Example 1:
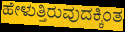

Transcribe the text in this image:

ಹೇಳುತ್ತಿರುವುದಕ್ಕಿಂತ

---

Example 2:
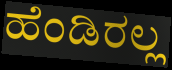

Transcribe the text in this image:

ಹೆಂಡಿರಲ್ಲ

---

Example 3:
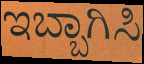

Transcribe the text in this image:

ಇಬ್ಬಾಗಿಸಿ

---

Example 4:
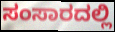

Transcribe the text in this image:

ಸಂಸಾರದಲ್ಲಿ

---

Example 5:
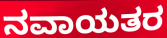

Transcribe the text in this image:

ನವಾಯತರ